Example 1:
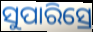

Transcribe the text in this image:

ସୁପାରିସ୍ରେ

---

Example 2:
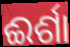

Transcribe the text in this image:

ଈର୍ଶା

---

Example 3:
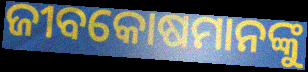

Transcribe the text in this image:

ଜୀବକୋଷମାନଙ୍କୁ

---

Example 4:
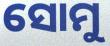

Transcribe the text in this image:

ସୋମୁ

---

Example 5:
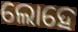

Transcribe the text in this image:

ଲୋହେ